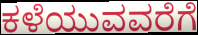
ಕಳೆಯುವವರೆಗೆ